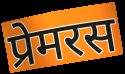
प्रेमरस